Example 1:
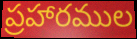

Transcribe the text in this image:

ప్రహారముల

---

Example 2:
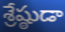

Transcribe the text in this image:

శ్రేష్ఠుడా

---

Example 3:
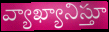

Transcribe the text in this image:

వ్యాఖ్యానిస్తూ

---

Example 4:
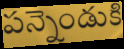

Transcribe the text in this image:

పన్నెండుకి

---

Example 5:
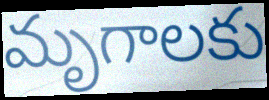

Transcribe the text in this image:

మృగాలకు